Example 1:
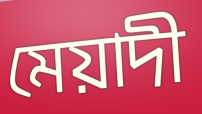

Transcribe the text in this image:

মেয়াদী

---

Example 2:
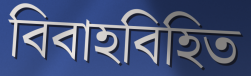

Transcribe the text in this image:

বিবাহবিহিত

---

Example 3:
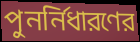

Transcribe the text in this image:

পুনর্নিধারণের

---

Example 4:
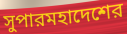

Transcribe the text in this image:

সুপারমহাদেশের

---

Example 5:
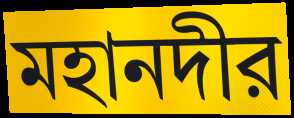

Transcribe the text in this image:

মহানদীর